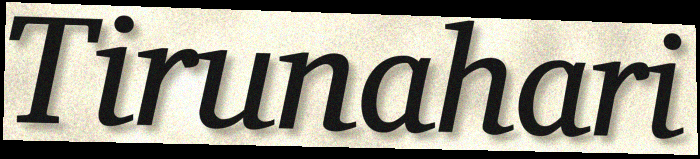
Tirunahari